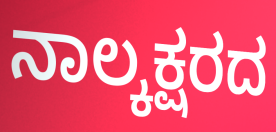
ನಾಲ್ಕಕ್ಷರದ